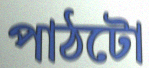
পাঠটো